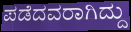
ಪಡೆದವರಾಗಿದ್ದು